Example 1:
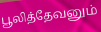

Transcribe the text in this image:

பூலித்தேவனும்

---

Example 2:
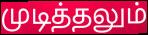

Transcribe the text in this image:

முடித்தலும்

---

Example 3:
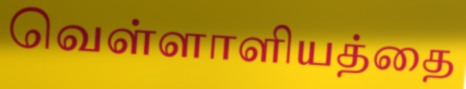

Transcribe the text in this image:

வெள்ளாளியத்தை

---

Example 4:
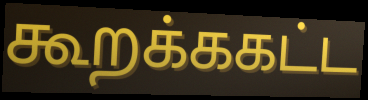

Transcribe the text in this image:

கூறக்ககட்ட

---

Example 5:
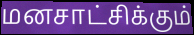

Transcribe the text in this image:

மனசாட்சிக்கும்